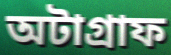
অটাগ্রাফ